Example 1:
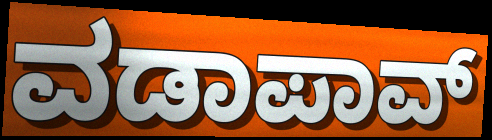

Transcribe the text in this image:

ವಡಾಪಾವ್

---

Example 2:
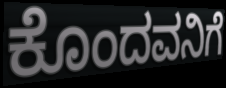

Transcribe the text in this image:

ಕೊಂದವನಿಗೆ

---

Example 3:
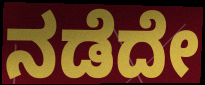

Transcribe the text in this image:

ನಡೆದೇ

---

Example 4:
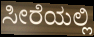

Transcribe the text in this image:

ಸೀರೆಯಲ್ಲಿ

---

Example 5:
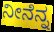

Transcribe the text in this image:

ನೀನೆನ್ನ